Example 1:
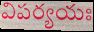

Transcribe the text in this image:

విపర్యయః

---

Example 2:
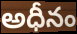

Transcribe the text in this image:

అధీనం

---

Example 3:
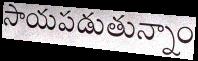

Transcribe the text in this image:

సాయపడుతున్నాం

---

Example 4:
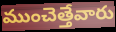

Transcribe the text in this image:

ముంచెత్తేవారు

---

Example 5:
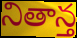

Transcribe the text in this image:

నితాన్త